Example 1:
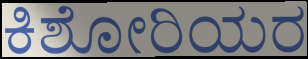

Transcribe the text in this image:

ಕಿಶೋರಿಯರ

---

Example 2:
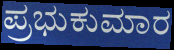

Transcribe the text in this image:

ಪ್ರಭುಕುಮಾರ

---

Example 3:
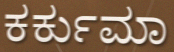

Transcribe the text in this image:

ಕರ್ಕುಮಾ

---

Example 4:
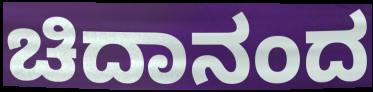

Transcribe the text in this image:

ಚಿದಾನಂದ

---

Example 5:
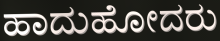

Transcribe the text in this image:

ಹಾದುಹೋದರು